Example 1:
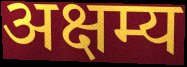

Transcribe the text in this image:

अक्षम्य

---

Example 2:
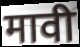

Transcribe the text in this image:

मावी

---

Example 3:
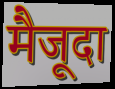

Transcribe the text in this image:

मैजूदा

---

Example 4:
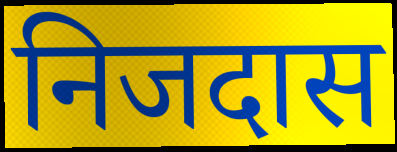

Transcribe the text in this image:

निजदास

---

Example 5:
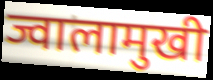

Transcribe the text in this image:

ज्वालामुखी